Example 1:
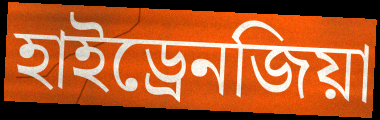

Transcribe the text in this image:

হাইড্রেনজিয়া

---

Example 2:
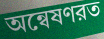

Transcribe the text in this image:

অন্বেষণরত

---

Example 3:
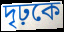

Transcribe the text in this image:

দৃঢ়কে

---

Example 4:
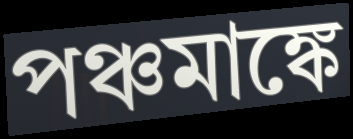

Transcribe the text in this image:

পঞ্চমাঙ্কে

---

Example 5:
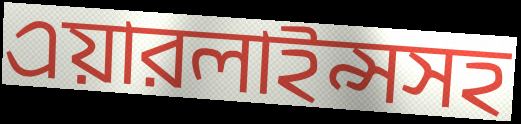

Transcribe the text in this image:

এয়ারলাইন্সসহ